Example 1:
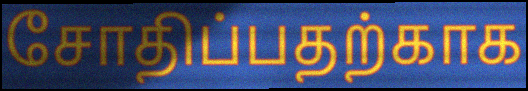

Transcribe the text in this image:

சோதிப்பதற்காக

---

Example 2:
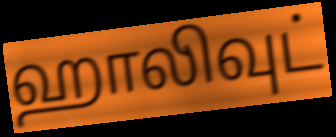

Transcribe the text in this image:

ஹாலிவுட்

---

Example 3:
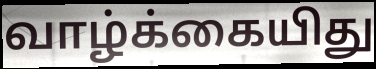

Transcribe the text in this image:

வாழ்க்கையிது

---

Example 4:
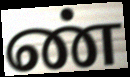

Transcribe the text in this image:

ண்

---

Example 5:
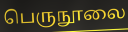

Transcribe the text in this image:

பெருநூலை